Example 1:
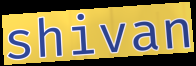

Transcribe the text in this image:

shivan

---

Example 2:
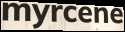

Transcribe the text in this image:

myrcene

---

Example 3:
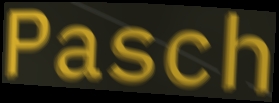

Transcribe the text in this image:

Pasch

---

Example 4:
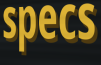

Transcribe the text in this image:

specs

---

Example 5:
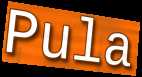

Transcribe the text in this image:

Pula